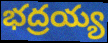
భద్రయ్య